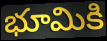
భూమికి